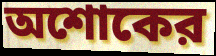
অশোকের